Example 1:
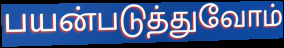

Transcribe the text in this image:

பயன்படுத்துவோம்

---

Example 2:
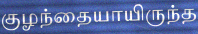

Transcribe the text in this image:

குழந்தையாயிருந்த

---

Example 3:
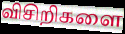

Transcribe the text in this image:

விசிறிகளை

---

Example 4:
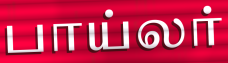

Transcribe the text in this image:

பாய்லர்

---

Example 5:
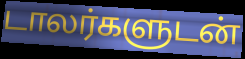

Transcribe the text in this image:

டாலர்களுடன்